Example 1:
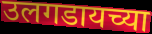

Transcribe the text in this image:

उलगडायच्या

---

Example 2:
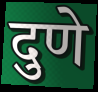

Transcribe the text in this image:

दुणे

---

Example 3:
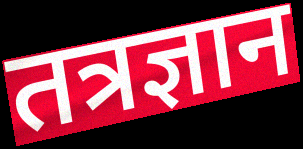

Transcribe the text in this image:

तत्रज्ञान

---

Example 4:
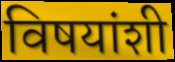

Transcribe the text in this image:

विषयांशी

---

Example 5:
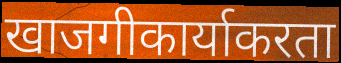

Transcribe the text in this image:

खाजगीकार्याकरता